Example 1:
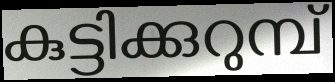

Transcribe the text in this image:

കുട്ടിക്കുറുമ്പ്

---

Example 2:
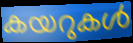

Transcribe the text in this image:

കയറുകൾ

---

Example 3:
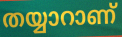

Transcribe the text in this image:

തയ്യാറാണ്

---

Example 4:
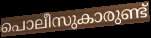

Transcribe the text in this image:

പൊലീസുകാരുണ്ട്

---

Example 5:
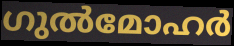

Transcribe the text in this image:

ഗുൽമോഹർ